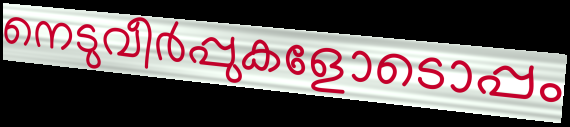
നെടുവീർപ്പുകളോടൊപ്പം